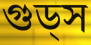
গুড্স